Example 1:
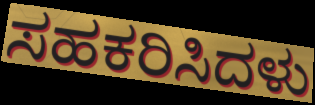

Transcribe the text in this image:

ಸಹಕರಿಸಿದಳು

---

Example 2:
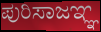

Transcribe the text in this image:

ಪುರಿಸಾಜಞ್ಞ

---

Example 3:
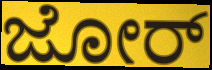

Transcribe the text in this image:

ಜೋರ್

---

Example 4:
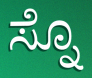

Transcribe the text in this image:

ಸ್ನೊ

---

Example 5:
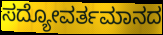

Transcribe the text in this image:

ಸದ್ಯೋವರ್ತಮಾನದ